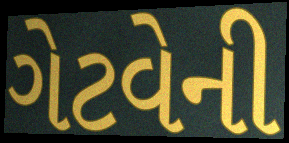
ગેટવેની